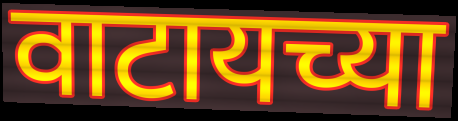
वाटायच्या